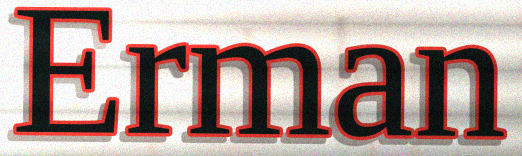
Erman